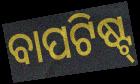
ବାପଟିଷ୍ଟ୍